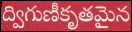
ద్విగుణీకృతమైన